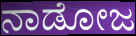
ನಾಡೋಜ